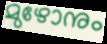
മുഴോനും